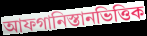
আফগানিস্তানভিত্তিক